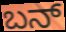
ಬನ್